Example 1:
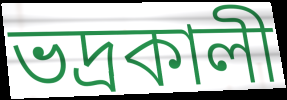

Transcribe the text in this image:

ভদ্রকালী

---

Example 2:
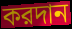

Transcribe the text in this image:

করদান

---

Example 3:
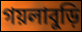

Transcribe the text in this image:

গয়লাবুড়ি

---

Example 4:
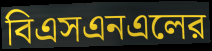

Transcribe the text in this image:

বিএসএনএলের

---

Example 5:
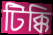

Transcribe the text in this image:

টিক্কি